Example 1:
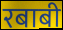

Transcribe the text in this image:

रबाबी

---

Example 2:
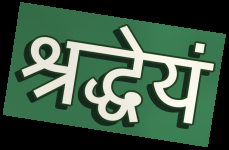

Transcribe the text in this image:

श्रद्धेयं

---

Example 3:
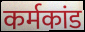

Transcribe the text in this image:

कर्मकांड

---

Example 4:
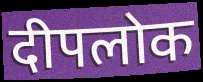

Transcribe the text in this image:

दीपलोक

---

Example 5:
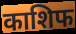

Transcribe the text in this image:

काशिफ